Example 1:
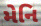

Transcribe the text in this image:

મેનિ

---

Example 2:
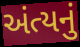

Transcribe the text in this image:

અંત્યનું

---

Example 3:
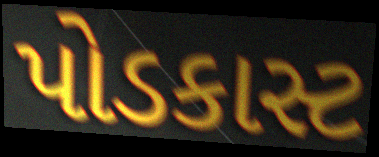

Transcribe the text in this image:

પોડકાસ્ટ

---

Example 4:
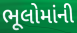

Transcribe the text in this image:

ભૂલોમાંની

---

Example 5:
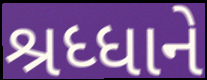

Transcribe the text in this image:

શ્રધ્ધાને